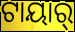
ଟାୟାର୍